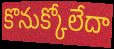
కొనుక్కోలేదా